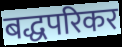
बद्धपरिकर